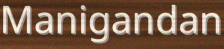
Manigandan